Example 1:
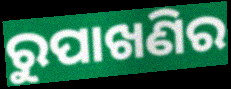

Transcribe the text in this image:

ରୁପାଖଣିର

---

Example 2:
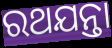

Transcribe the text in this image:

ରଥଯନ୍ତା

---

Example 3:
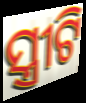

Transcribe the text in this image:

ସ୍ତ୍ରୀଟି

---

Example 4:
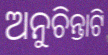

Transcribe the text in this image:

ଅନୁଚିନ୍ତାଟି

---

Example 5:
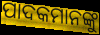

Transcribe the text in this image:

ପାଦକମାନଙ୍କୁ